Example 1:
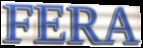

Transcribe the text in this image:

FERA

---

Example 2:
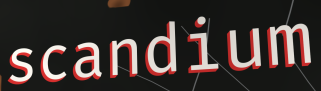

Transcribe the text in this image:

scandium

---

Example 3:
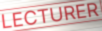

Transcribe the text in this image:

LECTURER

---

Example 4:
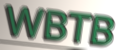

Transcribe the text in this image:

WBTB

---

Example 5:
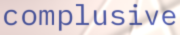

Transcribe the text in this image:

complusive